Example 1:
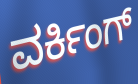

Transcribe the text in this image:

ವರ್ಕಿಂಗ್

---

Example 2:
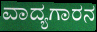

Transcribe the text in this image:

ವಾದ್ಯಗಾರನ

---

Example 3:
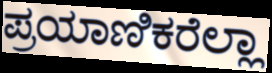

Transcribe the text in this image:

ಪ್ರಯಾಣಿಕರೆಲ್ಲಾ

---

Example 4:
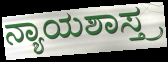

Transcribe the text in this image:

ನ್ಯಾಯಶಾಸ್ತ್ರ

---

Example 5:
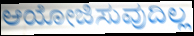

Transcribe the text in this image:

ಆಯೋಜಿಸುವುದಿಲ್ಲ